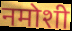
नमोशी